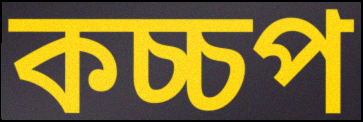
কচ্চপ